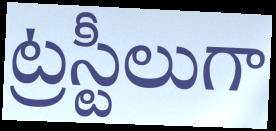
ట్రస్టీలుగా